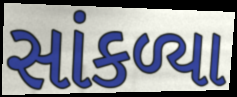
સાંકળ્યા